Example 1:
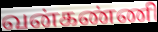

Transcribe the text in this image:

வன்கண்ணி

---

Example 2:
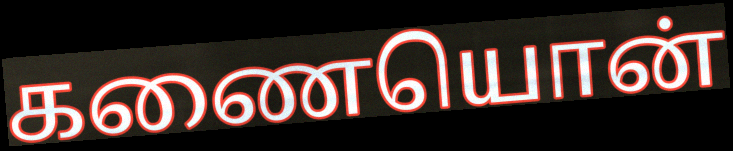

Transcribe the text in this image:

கணையொன்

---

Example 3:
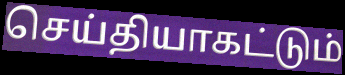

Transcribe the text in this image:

செய்தியாகட்டும்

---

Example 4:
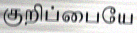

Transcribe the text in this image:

குறிப்பையே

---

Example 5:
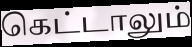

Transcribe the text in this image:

கெட்டாலும்